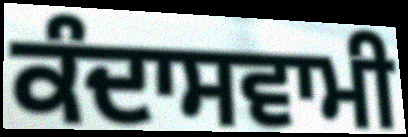
ਕੰਦਾਸਵਾਮੀ